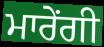
ਮਾਰੇਂਗੀ